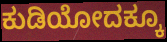
ಕುಡಿಯೋದಕ್ಕೂ